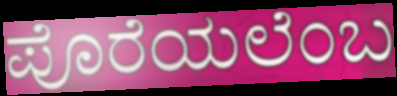
ಪೊರೆಯಲೆಂಬ